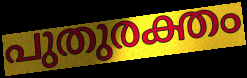
പുതുരക്തം